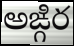
అఙ్గిర